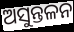
ଅସୁନ୍ତଳନ